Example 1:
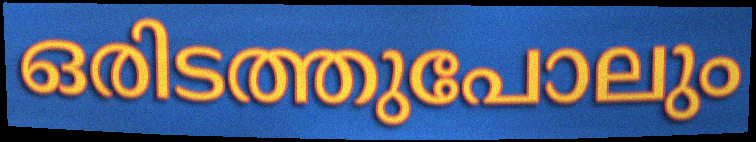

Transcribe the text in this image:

ഒരിടത്തുപോലും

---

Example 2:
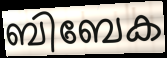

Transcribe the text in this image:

ബിബേക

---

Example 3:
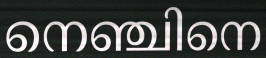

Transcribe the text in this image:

നെഞ്ചിനെ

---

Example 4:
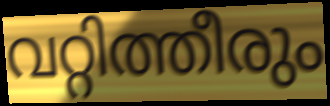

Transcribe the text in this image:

വറ്റിത്തീരും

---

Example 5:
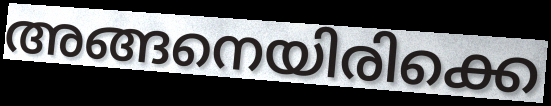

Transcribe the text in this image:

അങ്ങനെയിരിക്കെ